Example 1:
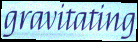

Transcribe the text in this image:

gravitating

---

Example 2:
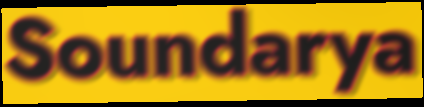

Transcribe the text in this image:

Soundarya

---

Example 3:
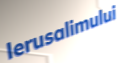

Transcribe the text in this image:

Ierusalimului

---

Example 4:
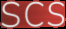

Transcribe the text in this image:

scs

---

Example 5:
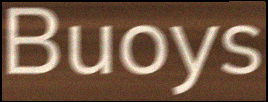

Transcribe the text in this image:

Buoys